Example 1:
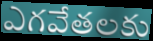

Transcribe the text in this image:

ఎగవేతలకు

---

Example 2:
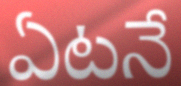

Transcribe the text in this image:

ఏటనే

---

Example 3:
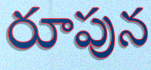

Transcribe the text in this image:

రూపున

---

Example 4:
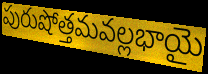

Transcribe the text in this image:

పురుషోత్తమవల్లభాయై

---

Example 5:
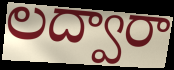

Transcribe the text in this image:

లద్వారా